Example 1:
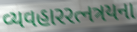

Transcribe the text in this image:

વ્યવહારરત્નત્રયના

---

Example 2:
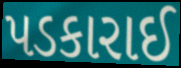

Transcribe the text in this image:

પડકારાઈ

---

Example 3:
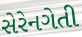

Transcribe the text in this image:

સેરેનગેતી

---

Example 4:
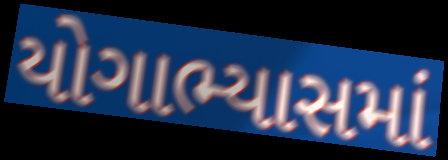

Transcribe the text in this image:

યોગાભ્યાસમાં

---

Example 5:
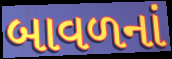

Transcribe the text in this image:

બાવળનાં